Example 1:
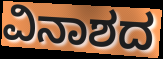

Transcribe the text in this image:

ವಿನಾಶದ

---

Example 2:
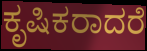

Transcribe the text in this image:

ಕೃಷಿಕರಾದರೆ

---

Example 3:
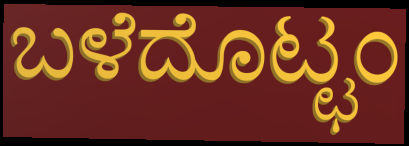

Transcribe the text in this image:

ಬಳೆದೊಟ್ಟಂ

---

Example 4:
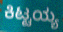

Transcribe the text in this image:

ಕಿಟ್ಟಯ್ಯ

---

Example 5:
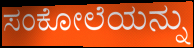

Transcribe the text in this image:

ಸಂಕೋಲೆಯನ್ನು